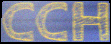
CCH